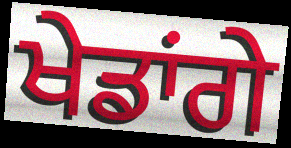
ਖੇਡਾਂਗੇ